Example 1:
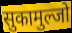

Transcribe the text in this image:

सुकामुल्जो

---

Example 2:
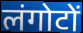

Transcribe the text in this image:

लंगोटों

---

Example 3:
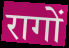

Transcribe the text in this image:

रागों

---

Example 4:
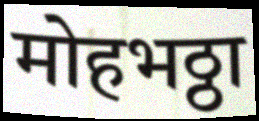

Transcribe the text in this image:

मोहभठ्ठा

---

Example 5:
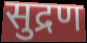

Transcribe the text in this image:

सुद्रण